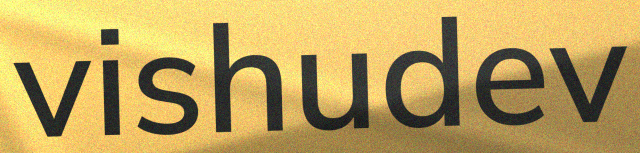
vishudev